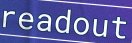
readout